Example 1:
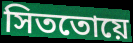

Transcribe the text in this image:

সিততোয়ে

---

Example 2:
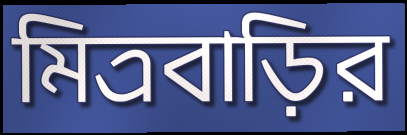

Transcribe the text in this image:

মিত্রবাড়ির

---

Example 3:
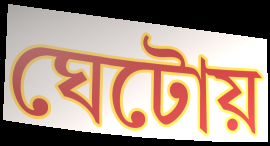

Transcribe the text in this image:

ঘেটোয়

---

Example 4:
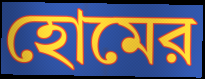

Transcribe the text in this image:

হোমের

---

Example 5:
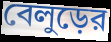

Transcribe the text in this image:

বেলুড়ের